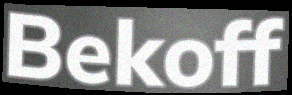
Bekoff